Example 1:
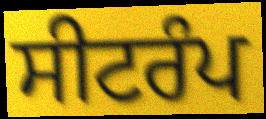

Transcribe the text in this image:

ਸੀਟਰੰਪ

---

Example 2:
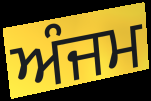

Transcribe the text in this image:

ਅੰਜਮ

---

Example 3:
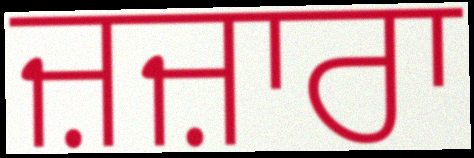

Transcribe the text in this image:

ਜ਼ਜ਼ਾਰਾ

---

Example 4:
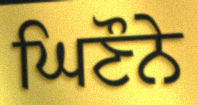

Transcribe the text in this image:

ਘਿਣੌਨੇ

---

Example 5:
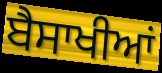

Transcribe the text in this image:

ਬੈਸਾਖੀਆਂ